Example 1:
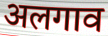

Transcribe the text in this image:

अलगाव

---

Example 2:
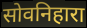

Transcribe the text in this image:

सोवनिहारा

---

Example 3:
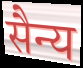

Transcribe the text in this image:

सैन्य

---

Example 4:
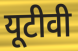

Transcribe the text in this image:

यूटीवी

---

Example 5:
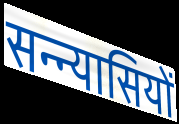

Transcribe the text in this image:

सन्न्यासियों